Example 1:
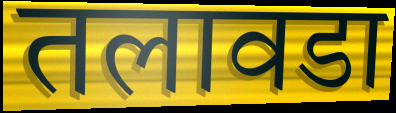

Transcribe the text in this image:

तलावडा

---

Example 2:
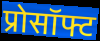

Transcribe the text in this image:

प्रोसॉफ्ट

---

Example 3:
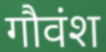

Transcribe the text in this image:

गौवंश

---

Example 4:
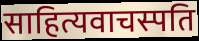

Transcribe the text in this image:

साहित्यवाचस्पति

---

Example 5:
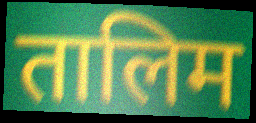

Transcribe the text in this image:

तालिम